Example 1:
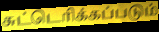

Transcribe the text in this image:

சுட்டெரிக்கப்படும்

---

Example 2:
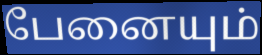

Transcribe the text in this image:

பேனையும்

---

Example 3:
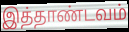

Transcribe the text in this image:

இத்தாண்டவம்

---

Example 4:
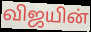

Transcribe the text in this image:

விஜயின்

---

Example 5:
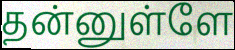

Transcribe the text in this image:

தன்னுள்ளே